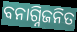
ବନାଗ୍ନିଜନିତ